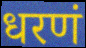
धरणं